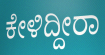
ಕೇಳಿದ್ದೀರಾ